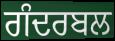
ਗੰਦਰਬਲ